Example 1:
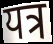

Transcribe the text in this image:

यत्र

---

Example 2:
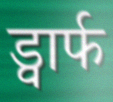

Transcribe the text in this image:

ड्वार्फ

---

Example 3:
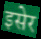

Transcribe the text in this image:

इसेर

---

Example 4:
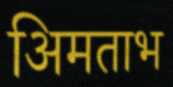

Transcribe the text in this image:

अिमताभ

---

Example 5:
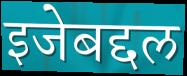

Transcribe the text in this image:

इजेबद्दल